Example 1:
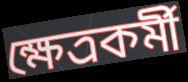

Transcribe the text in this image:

ক্ষেত্ৰকৰ্মী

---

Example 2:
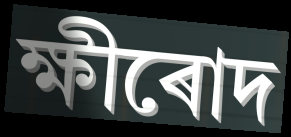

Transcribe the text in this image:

ক্ষীৰোদ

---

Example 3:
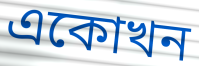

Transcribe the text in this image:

একোখন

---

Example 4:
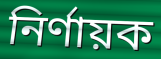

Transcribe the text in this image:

নিৰ্ণায়ক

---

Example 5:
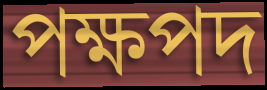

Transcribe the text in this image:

পক্ষপদ